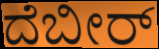
ದೆಬೀರ್